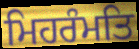
ਮਿਹਰੰਮਤਿ